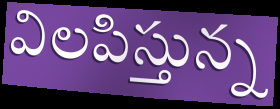
విలపిస్తున్న